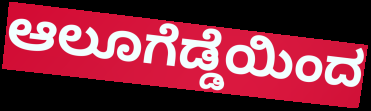
ಆಲೂಗೆಡ್ಡೆಯಿಂದ